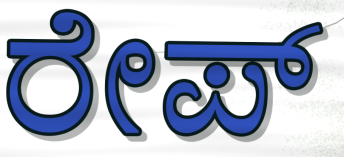
ರೇಪ್